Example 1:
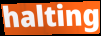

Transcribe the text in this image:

halting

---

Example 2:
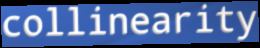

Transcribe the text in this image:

collinearity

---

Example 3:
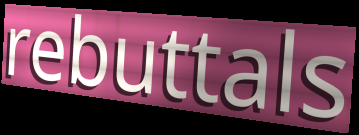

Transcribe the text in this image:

rebuttals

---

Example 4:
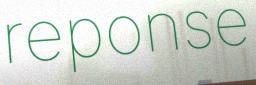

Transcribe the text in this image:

reponse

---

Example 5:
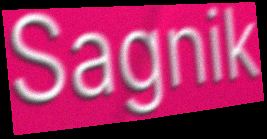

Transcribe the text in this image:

Sagnik